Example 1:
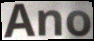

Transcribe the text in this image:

Ano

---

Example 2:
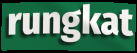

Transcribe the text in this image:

rungkat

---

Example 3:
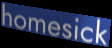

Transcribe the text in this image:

homesick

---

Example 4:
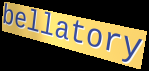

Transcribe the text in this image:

bellatory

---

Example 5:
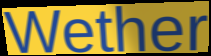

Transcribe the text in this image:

Wether